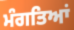
ਮੰਗਤਿਆਂ